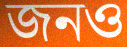
জনও